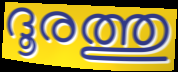
ദൂരത്തു